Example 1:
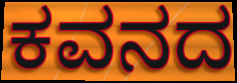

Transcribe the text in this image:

ಕವನದ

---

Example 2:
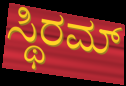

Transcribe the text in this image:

ಸ್ಥಿರಮ್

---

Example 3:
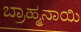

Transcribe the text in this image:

ಬ್ರಾಹ್ಮನಾಯಿ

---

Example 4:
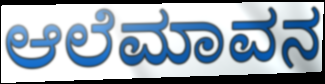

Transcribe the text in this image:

ಆಲೆಮಾವನ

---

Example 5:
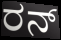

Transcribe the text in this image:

ರನ್